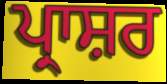
ਪ੍ਰਾਸ਼ਰ